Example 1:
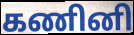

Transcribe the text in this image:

கணினி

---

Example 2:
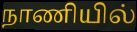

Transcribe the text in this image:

நாணியில்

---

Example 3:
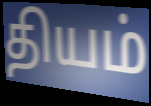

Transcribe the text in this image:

தியம்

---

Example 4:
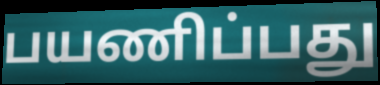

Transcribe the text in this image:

பயணிப்பது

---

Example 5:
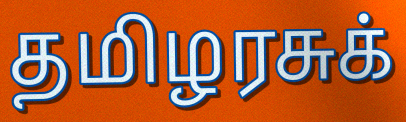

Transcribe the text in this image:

தமிழரசுக்